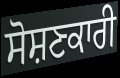
ਸੋਸ਼ਣਕਾਰੀ